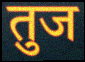
तुज